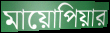
মায়োপিয়ার